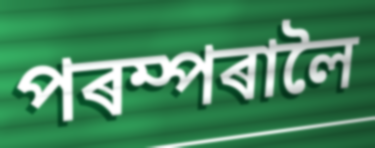
পৰম্পৰালৈ